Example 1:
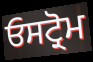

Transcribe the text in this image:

ਓਸਟ੍ਰੋਮ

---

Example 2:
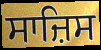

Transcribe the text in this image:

ਸਾਜ਼ਿਸ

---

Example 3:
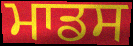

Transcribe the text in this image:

ਮਾਡਸ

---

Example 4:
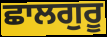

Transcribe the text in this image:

ਛਾਲਗੁਰੂ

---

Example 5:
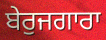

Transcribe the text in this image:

ਬੇਰੁਜਗਾਰਾ